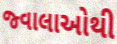
જ્વાલાઓથી